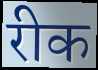
रीक